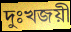
দুঃখজয়ী